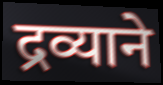
द्रव्याने